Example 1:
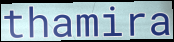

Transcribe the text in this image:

thamira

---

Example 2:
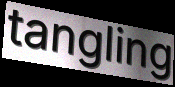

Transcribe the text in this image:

tangling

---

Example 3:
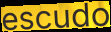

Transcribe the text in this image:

escudo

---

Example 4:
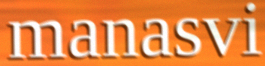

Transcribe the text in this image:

manasvi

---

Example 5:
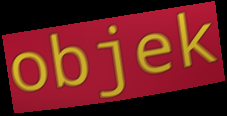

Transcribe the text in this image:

objek